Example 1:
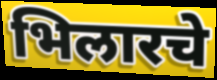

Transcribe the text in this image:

भिलारचे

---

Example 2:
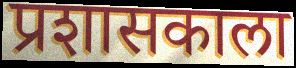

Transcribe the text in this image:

प्रशासकाला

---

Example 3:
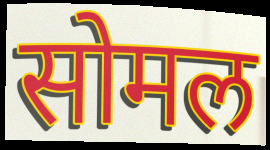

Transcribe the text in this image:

सोमल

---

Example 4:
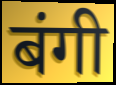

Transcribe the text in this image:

बंगी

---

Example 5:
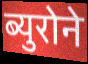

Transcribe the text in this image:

ब्युरोने